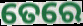
ତେରେ